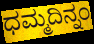
ಧಮ್ಮದಿನ್ನಂ